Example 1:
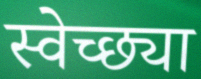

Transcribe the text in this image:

स्वेच्छ्या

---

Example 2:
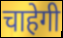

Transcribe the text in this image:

चाहेगी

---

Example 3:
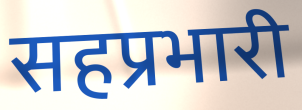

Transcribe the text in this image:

सहप्रभारी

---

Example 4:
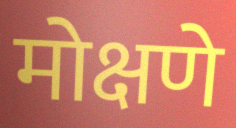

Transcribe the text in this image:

मोक्षणे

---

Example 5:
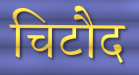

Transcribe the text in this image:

चिटौद